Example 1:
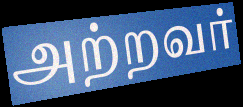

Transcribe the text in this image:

அற்றவர்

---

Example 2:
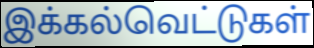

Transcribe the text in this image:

இக்கல்வெட்டுகள்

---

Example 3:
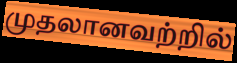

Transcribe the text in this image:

முதலானவற்றில்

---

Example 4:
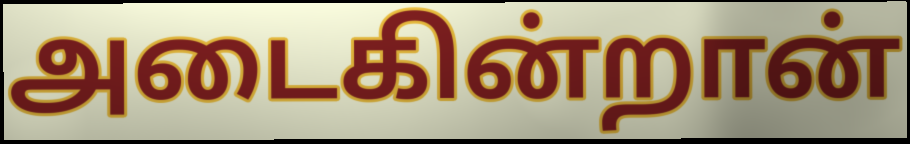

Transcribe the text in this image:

அடைகின்றான்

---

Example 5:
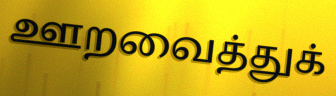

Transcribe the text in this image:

ஊறவைத்துக்